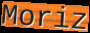
Moriz